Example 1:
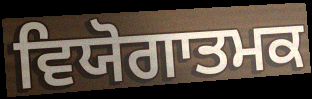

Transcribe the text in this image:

ਵਿਯੋਗਾਤਮਕ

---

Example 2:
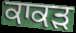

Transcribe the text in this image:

ਕਾਕੜ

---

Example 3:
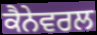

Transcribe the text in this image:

ਕੈਨੇਵਰਲ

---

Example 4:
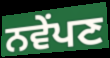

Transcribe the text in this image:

ਨਵੇਂਪਣ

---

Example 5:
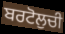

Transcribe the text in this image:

ਬਰਟੋਲੁਚੀ